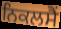
ਨਿਕਲਸੈਂ